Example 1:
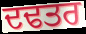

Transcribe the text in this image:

ਦਢਤਰ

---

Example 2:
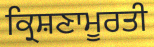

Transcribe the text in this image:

ਕ੍ਰਿਸ਼ਣਾਮੂਰਤੀ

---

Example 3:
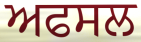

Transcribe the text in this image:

ਅਫਸਲ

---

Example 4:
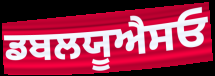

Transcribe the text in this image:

ਡਬਲਯੂਐਸਓ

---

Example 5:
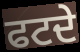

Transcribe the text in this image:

ਫਟਦੇ